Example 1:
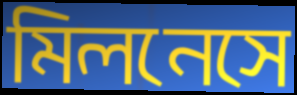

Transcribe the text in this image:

মিলনেসে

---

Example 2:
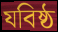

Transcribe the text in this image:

যবিষ্ঠ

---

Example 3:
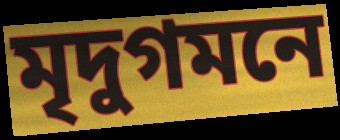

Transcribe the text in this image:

মৃদুগমনে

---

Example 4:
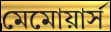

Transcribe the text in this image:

মেমোয়ার্স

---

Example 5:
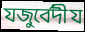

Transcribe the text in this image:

যজুর্বেদীয